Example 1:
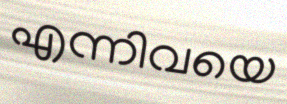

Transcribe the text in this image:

എന്നിവയെ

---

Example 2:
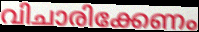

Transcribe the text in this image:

വിചാരിക്കേണം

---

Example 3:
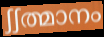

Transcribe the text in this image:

ഽഽത്മാനം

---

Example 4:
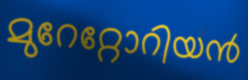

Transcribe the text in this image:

മുറേറ്റോറിയൻ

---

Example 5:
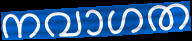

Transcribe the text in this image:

നവാഗത